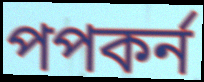
পপকর্ন